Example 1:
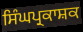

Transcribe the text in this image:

ਸਿੰਘਪ੍ਰਕਾਸ਼ਕ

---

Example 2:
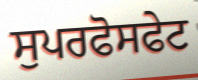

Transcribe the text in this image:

ਸੁਪਰਫੋਸਫੇਟ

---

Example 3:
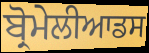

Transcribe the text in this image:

ਬ੍ਰੋਮੇਲੀਆਡਸ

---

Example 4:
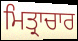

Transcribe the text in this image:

ਮਿਤ੍ਰਾਚਾਰ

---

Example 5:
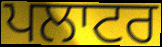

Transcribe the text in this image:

ਪਲਾਟਰ